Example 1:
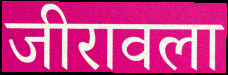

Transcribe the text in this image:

जीरावला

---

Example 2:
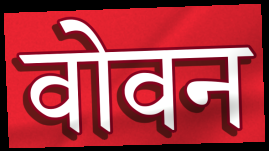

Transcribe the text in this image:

वोवन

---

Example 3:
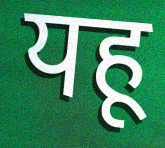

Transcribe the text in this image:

यहू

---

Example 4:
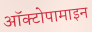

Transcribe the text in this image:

ऑक्टोपामाइन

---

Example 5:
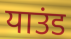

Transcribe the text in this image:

याउंड